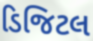
ડિજિટલ